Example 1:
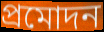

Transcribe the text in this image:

প্রমোদন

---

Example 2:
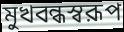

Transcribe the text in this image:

মুখবন্ধস্বরূপ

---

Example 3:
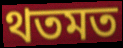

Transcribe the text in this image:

থতমত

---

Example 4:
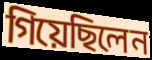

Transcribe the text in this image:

গিয়েছিলেন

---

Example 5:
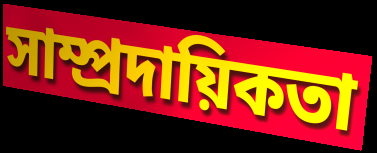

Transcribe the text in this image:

সাম্প্রদায়িকতা